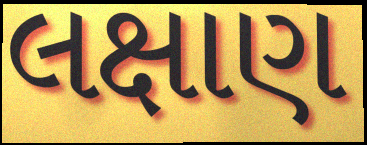
લક્ષાણ